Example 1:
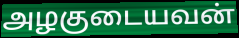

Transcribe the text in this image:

அழகுடையவன்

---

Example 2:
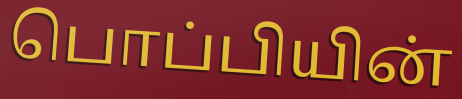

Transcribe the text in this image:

பொப்பியின்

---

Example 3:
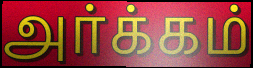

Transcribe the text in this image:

அர்க்கம்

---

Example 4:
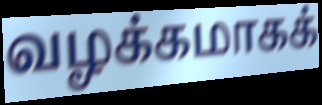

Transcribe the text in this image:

வழக்கமாகக்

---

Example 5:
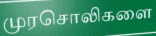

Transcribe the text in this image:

முரசொலிகளை